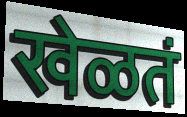
खेळतं